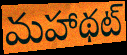
మహాథట్